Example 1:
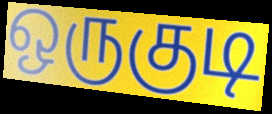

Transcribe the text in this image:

ஒருகுடி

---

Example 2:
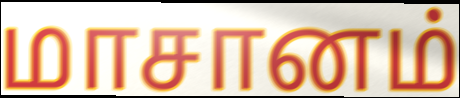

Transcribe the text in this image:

மாசானம்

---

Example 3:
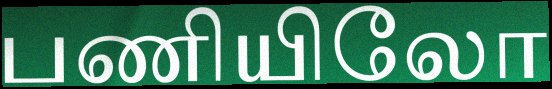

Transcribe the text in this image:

பணியிலோ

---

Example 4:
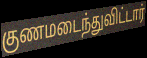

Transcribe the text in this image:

குணமடைந்துவிட்டார்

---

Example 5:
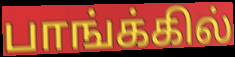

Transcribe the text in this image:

பாங்க்கில்